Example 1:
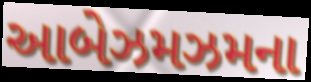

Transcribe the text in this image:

આબેઝમઝમના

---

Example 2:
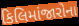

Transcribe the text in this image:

કિલિમાંજારોના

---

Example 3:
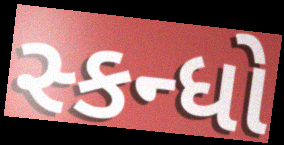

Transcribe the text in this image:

સ્કન્ધો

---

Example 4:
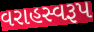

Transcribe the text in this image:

વરાહસ્વરૂપ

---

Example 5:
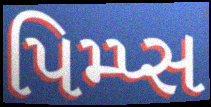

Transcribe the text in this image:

પિમ્પ્સ